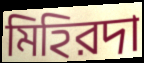
মিহিরদা